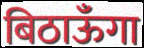
बिठाऊँगा